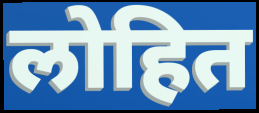
लोहित